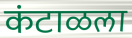
कंटाळला